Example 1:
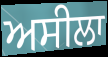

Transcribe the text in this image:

ਅਸੀਲਾ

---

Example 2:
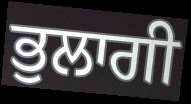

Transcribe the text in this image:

ਭੁਲਾਗੀ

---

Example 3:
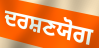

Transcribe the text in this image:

ਦਰਸ਼ਣਯੋਗ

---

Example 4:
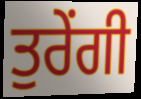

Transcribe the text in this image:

ਤੁਰੇਂਗੀ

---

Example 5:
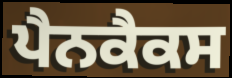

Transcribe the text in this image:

ਪੈਨਕੈਕਸ